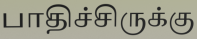
பாதிச்சிருக்கு